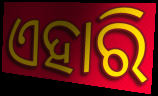
ଏହାରି